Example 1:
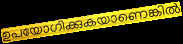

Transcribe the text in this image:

ഉപയോഗിക്കുകയാണെങ്കിൽ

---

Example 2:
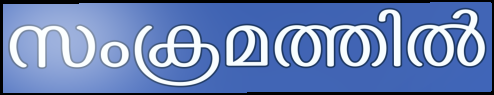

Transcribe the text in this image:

സംക്രമത്തിൽ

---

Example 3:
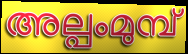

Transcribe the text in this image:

അല്പംമുമ്പ്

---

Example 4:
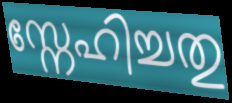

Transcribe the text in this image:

സ്നേഹിച്ചതു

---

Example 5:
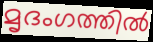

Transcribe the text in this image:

മൃദംഗത്തിൽ